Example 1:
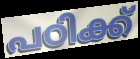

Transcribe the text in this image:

പഠിക്ക്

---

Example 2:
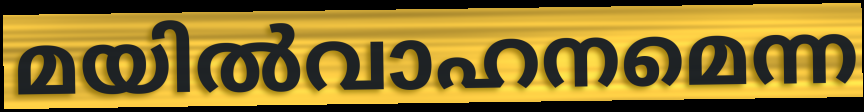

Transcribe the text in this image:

മയിൽവാഹനമെന്ന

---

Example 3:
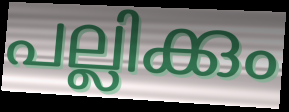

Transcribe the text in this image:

പല്ലിക്കും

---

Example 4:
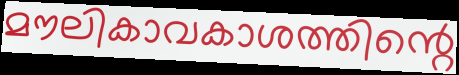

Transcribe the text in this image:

മൗലികാവകാശത്തിന്റെ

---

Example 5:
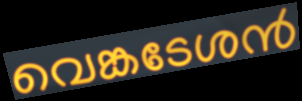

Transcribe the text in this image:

വെങ്കടേശൻ